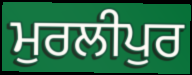
ਮੁਰਲੀਪੁਰ